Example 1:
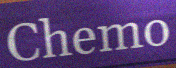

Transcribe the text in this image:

Chemo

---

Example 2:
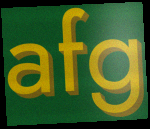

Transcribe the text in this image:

afg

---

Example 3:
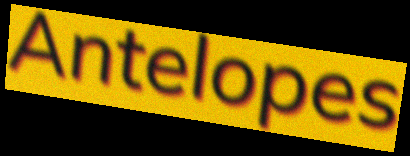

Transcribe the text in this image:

Antelopes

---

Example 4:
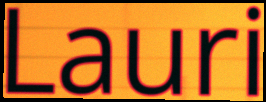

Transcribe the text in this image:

Lauri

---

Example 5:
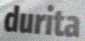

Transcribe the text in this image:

durita